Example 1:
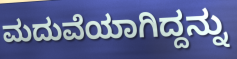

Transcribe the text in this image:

ಮದುವೆಯಾಗಿದ್ದನ್ನು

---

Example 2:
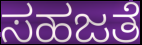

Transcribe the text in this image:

ಸಹಜತೆ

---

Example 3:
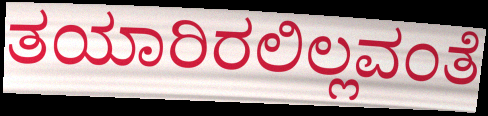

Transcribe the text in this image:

ತಯಾರಿರಲಿಲ್ಲವಂತೆ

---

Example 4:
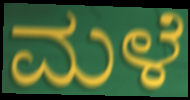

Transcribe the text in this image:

ಮಳೆ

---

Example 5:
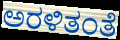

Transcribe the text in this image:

ಅರಳಿತಂತೆ